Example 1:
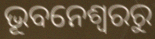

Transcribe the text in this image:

ଭୂବନେଶ୍ୱରରୁ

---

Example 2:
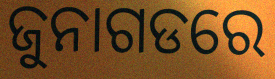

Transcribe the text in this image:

ଜୁନାଗଡରେ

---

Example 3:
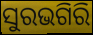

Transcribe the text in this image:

ସୁରଭଗିରି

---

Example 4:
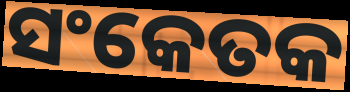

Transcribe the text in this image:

ସଂକେତକ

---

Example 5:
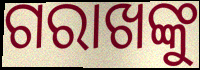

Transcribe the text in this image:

ଗରାଖଙ୍କୁ